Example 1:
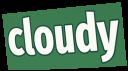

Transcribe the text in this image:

cloudy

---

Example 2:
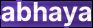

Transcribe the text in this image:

abhaya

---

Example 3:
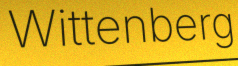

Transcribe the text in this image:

Wittenberg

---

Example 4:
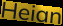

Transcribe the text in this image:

Heian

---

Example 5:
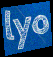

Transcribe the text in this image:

lyo